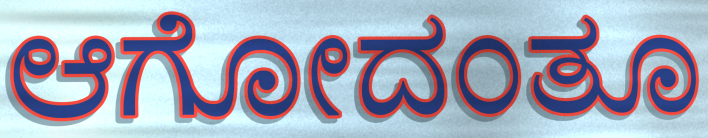
ಆಗೋದಂತೂ